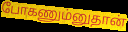
போகணும்னுதான்